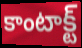
కాంటాక్ట్